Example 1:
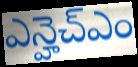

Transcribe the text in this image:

ఎన్హెచ్ఎం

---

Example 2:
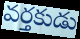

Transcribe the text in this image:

వర్తకుడు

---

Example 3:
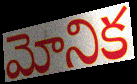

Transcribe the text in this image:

మోనిక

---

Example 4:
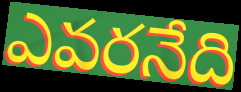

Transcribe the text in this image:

ఎవరనేది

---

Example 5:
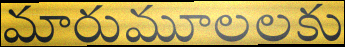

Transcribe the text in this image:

మారుమూలలకు